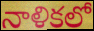
నాళికలో